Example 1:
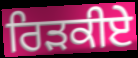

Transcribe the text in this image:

ਰਿੜਕੀਏ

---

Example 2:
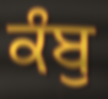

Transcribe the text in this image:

ਕੰਬੁ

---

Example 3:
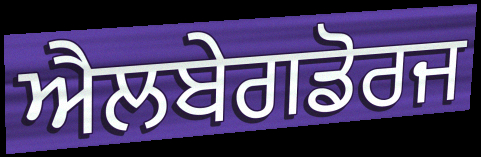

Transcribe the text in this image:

ਐਲਬੇਗਡੋਰਜ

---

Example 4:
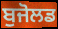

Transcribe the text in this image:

ਬੁਜੋਲਡ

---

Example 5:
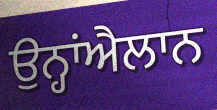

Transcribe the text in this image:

ਉਨ੍ਹਾਂਐਲਾਨ